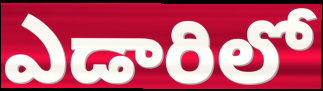
ఎడారిలో